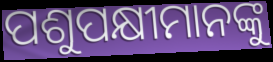
ପଶୁପକ୍ଷୀମାନଙ୍କୁ